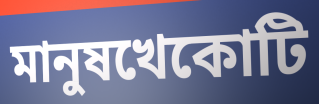
মানুষখেকোটি